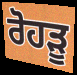
ਰੋਹੜੂ